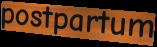
postpartum